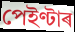
পেইণ্টাৰ